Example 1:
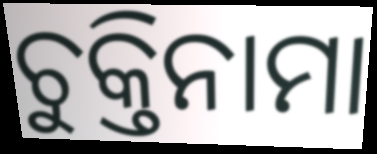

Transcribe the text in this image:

ଚୁକ୍ତିନାମା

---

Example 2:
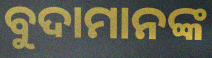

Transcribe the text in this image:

ବୁଦାମାନଙ୍କ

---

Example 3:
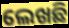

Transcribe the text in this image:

ଲେଖଛି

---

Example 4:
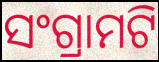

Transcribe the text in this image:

ସଂଗ୍ରାମଟି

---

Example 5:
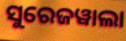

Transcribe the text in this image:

ସୁରେଜୱାଲା